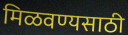
मिळवण्यसाठी